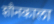
शौनकाला